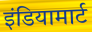
इंडियामार्ट